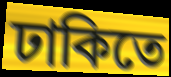
ঢাকিতে